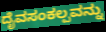
ದೈವಸಂಕಲ್ಪವನ್ನು